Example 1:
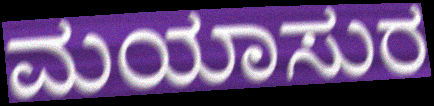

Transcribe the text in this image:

ಮಯಾಸುರ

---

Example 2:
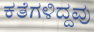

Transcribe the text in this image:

ಕತೆಗಳಿದ್ದವು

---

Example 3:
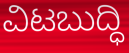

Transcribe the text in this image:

ವಿಟಬುದ್ಧಿ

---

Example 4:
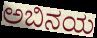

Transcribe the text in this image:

ಅಬಿನಯ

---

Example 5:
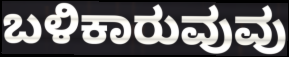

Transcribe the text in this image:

ಬಳಿಕಾರುವುವು